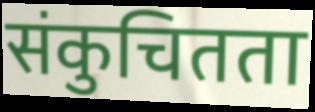
संकुचितता